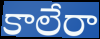
కాలేరా